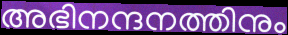
അഭിനന്ദനത്തിനും